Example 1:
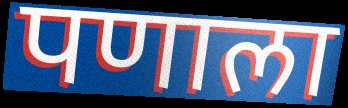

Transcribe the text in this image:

पणाला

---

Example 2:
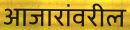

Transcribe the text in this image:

आजारांवरील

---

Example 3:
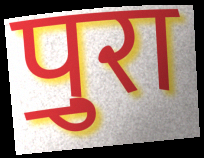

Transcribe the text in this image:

पु॒रा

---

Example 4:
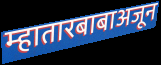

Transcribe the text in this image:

म्हातारबाबाअजून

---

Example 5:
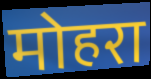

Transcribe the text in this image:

मोहरा